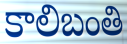
కాలిబంతి